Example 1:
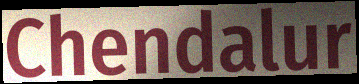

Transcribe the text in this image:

Chendalur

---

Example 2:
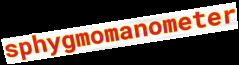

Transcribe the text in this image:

sphygmomanometer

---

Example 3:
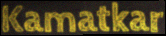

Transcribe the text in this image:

Kamatkar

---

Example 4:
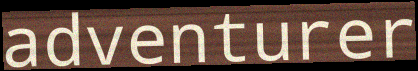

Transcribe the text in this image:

adventurer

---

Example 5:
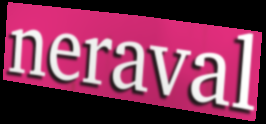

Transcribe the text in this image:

neraval